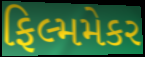
ફિલ્મમેકર